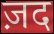
ज़द